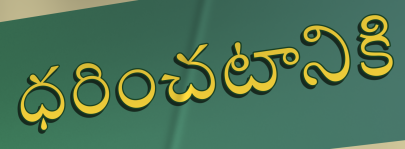
ధరించటానికి